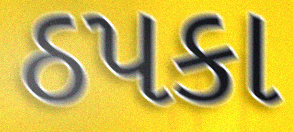
ઠપકા